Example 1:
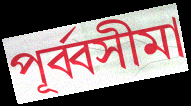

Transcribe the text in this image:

পূর্ব্বসীমা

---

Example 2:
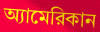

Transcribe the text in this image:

অ্যামেরিকান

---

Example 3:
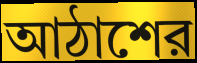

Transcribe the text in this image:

আঠাশের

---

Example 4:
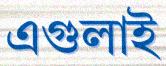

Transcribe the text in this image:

এগুলাই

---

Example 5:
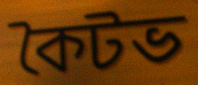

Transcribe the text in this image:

কৈটভ